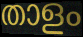
താളം